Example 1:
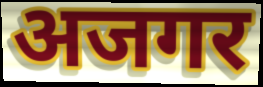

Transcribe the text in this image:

अजगर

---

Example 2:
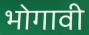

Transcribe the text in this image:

भोगावी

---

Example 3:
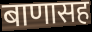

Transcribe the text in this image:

बाणासह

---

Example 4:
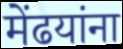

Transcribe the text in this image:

मेंढयांना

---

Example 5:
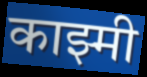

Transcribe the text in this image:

काझ्मी